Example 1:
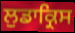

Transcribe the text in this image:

ਲੁਡਾਕ੍ਰਿਸ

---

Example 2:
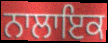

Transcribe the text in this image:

ਨਾਲਾਇਕ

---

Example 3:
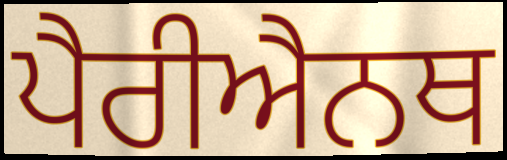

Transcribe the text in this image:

ਪੈਰੀਐਨਥ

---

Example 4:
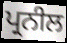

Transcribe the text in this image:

ਪ੍ਰਨੀਲ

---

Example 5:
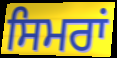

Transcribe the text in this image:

ਸਿਮਰਾਂ